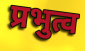
प्रभुत्व